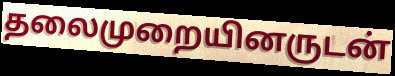
தலைமுறையினருடன்